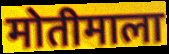
मोतीमाला